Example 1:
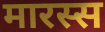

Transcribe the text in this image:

मारस्स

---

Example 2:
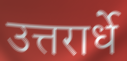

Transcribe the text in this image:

उत्तरार्धे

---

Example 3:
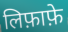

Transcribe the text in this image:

लिफ़ाफ़े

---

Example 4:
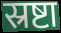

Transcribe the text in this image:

स्रष्टा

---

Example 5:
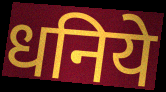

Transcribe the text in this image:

धनिये